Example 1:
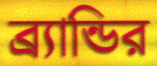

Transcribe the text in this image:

ব্র্যান্ডির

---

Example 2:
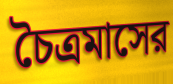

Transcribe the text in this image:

চৈত্রমাসের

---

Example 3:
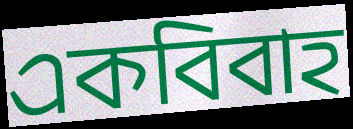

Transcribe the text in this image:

একবিবাহ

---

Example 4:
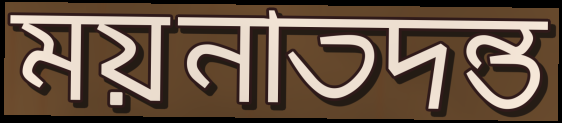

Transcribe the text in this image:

ময়নাতদন্ত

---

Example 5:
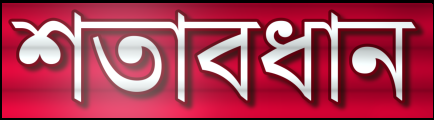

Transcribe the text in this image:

শতাবধান